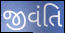
જીવંતિ